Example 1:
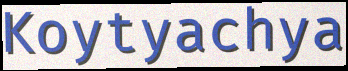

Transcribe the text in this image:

Koytyachya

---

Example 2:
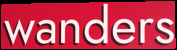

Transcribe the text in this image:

wanders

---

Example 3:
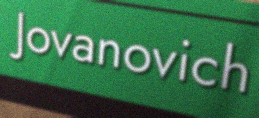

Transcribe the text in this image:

Jovanovich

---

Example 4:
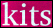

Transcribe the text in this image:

kits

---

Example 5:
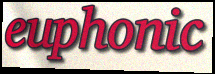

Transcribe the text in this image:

euphonic